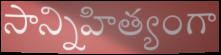
సాన్నిహిత్యంగా